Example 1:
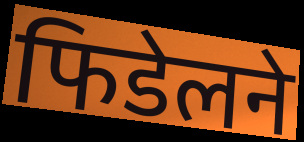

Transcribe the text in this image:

फिडेलने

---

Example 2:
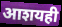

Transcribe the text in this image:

आशयही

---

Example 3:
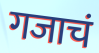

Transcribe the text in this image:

गजाचं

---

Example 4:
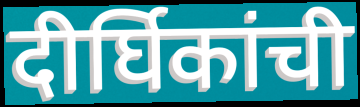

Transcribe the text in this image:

दीर्घिकांची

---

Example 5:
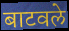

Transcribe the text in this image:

बाटवले